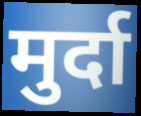
मुर्दा